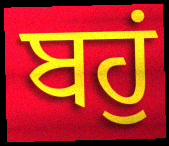
ਬਹੁਂ